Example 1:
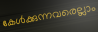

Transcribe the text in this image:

കേൾക്കുന്നവരെല്ലാം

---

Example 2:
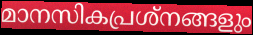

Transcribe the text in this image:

മാനസികപ്രശ്നങ്ങളും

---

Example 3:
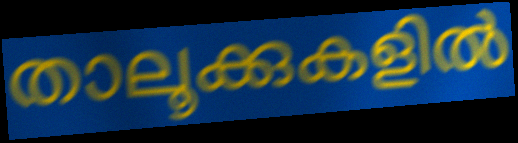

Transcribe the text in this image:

താലൂക്കുകളിൽ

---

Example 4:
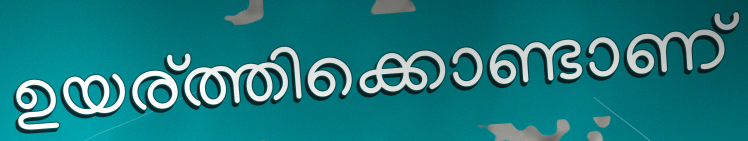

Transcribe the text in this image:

ഉയര്ത്തിക്കൊണ്ടാണ്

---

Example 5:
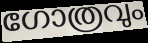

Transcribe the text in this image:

ഗോത്രവും